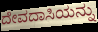
ದೇವದಾಸಿಯನ್ನು